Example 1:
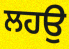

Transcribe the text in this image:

ਲਹਉ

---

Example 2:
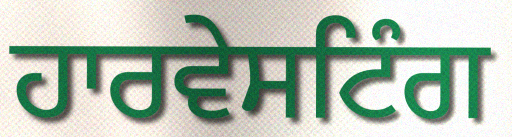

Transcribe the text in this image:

ਹਾਰਵੇਸਟਿੰਗ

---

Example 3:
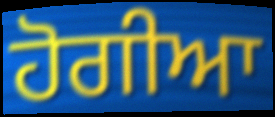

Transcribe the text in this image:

ਹੋਗੀਆ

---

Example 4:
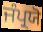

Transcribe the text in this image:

ਜੰਪ੍ਰਯੋ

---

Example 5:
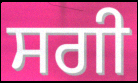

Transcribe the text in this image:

ਸਗੀ